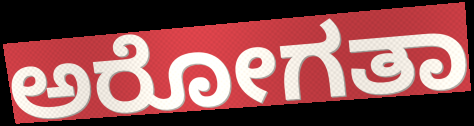
ಅರೋಗತಾ